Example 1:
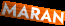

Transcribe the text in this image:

MARAN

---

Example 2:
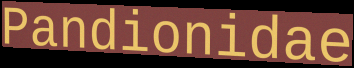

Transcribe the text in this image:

Pandionidae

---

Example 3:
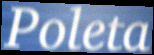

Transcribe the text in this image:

Poleta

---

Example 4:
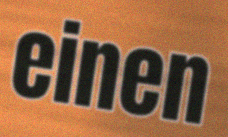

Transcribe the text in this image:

einen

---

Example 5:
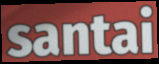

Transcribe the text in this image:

santai